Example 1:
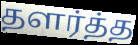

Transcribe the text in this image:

தளர்த்த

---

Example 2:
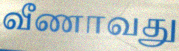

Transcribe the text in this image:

வீணாவது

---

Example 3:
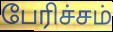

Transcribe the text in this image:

பேரிச்சம்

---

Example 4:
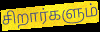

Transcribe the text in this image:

சிறார்களும்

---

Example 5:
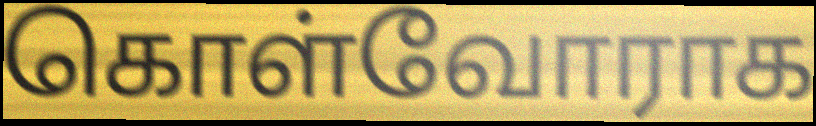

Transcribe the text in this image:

கொள்வோராக